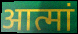
आत्मां